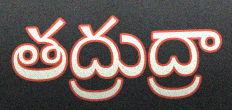
తద్రుద్రా